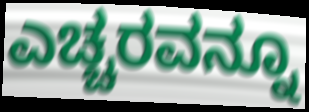
ಎಚ್ಚರವನ್ನೂ